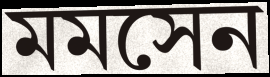
মমসেন